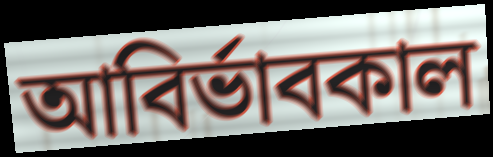
আবির্ভাবকাল